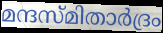
മന്ദസ്മിതാർദ്രം